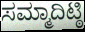
ಸಮ್ಮಾದಿಟ್ಠಿ